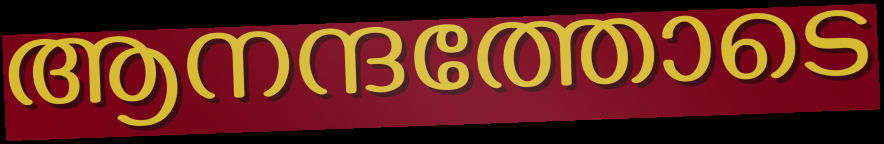
ആനന്ദത്തോടെ